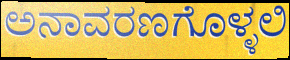
ಅನಾವರಣಗೊಳ್ಳಲಿ